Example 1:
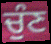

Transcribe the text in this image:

ਚੁੰਣ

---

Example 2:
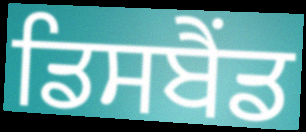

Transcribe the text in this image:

ਡਿਸਬੈਂਡ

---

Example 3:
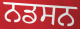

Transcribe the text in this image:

ਨਡਸਨ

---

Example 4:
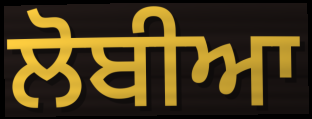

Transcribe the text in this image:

ਲੋਬੀਆ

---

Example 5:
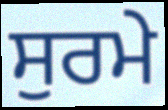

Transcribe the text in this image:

ਸੁਰਮੇ